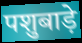
पशुबाड़े